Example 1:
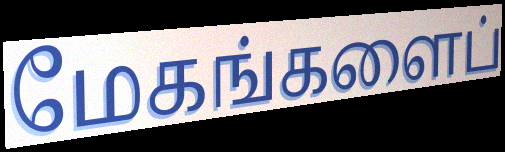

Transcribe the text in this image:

மேகங்களைப்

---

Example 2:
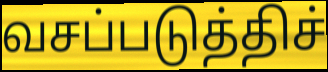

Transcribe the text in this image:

வசப்படுத்திச்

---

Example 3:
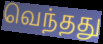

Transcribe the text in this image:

வெந்தது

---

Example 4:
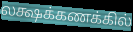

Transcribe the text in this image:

லக்ஷக்கணக்கில்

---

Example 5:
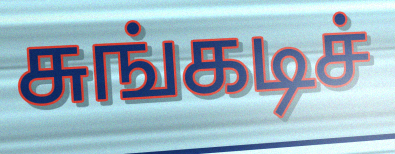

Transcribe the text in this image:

சுங்கடிச்